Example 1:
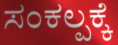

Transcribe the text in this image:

ಸಂಕಲ್ಪಕ್ಕೆ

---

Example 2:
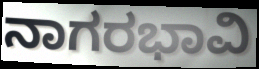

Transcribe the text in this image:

ನಾಗರಭಾವಿ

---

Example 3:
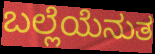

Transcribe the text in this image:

ಬಲ್ಲೆಯೆನುತ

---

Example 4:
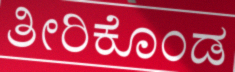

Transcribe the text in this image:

ತೀರಿಕೊಂಡ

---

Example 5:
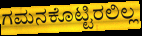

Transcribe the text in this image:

ಗಮನಕೊಟ್ಟಿರಲಿಲ್ಲ